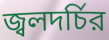
জ্বলদর্চির